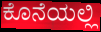
ಕೊನೆಯಲ್ಲಿ